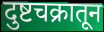
दुष्टचक्रातून